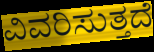
ವಿವರಿಸುತ್ತದೆ